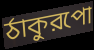
ঠাকুরপো